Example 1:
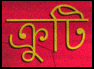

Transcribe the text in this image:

ক্ৰুটি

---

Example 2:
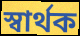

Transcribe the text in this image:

স্বাৰ্থক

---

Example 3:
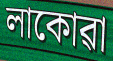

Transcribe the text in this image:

লাকোৱা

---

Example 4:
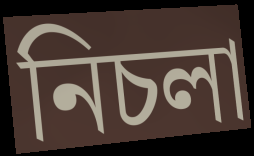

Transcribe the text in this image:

নিচলা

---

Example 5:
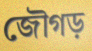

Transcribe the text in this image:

জৌগড়